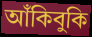
আঁকিবুকি